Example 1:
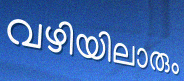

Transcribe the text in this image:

വഴിയിലാരും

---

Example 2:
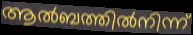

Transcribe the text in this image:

ആൽബത്തിൽനിന്ന്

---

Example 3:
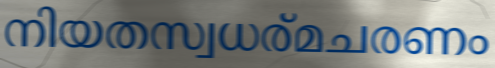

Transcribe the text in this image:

നിയതസ്വധര്മചരണം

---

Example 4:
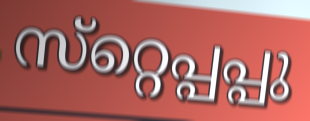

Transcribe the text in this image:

സ്‌റ്റെപ്പപ്പു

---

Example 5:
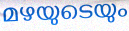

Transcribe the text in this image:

മഴയുടെയും